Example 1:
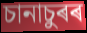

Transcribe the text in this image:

চানাচুৰৰ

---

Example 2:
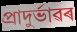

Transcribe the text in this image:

প্ৰাদুৰ্ভাৱৰ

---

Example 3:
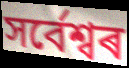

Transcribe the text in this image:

সৰ্বেশ্বৰ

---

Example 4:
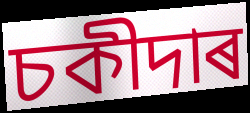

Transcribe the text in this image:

চকীদাৰ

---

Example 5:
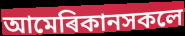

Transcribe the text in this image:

আমেৰিকানসকলে